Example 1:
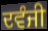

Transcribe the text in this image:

ਦਵੰਜੀ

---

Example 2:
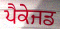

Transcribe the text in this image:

ਪੈਕੇਜਡ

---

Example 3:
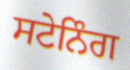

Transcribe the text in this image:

ਸਟੇਨਿੰਗ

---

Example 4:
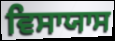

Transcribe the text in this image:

ਵਿਸਾਯਾਸ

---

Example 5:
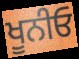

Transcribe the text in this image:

ਖੂਨੀਓ